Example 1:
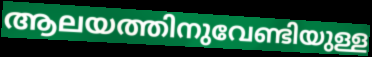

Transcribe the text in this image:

ആലയത്തിനുവേണ്ടിയുള്ള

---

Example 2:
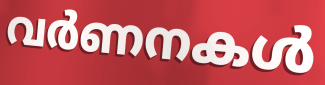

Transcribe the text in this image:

വർണനകൾ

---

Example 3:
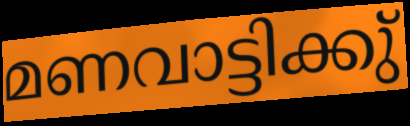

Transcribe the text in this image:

മണവാട്ടിക്കു്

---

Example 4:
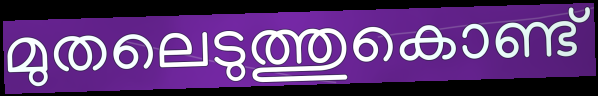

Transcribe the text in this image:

മുതലെടുത്തുകൊണ്ട്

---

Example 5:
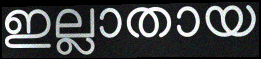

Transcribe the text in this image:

ഇല്ലാതായ